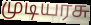
முடியரசு